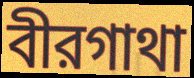
বীরগাথা